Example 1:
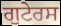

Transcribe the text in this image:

ਗੁਟੇਰਸ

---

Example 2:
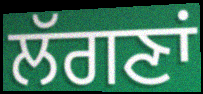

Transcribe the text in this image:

ਲੱਗਣਾਂ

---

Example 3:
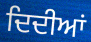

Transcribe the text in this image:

ਦਿਦੀਆਂ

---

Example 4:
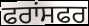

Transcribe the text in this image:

ਫਰਾਂਸਫਰ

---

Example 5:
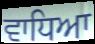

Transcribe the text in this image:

ਵਾਧਿਆ